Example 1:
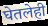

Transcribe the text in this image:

घेतलेही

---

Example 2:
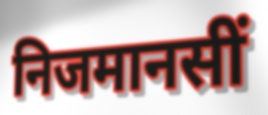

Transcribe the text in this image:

निजमानसीं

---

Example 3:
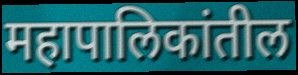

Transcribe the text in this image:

महापालिकांतील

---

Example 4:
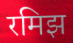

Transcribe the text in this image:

रमिझ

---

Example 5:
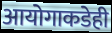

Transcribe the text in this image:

आयोगाकडेही